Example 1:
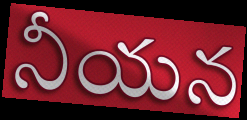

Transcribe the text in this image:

నీయన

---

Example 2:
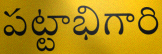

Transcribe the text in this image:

పట్టాభిగారి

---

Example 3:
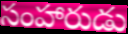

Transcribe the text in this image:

సంహారుడు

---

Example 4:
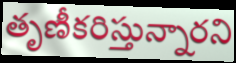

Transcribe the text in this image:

తృణీకరిస్తున్నారని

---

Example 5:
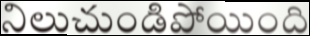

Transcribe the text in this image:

నిలుచుండిపోయింది